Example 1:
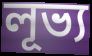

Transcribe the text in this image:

লূভ্য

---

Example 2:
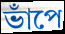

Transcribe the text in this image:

ভাঁপে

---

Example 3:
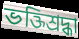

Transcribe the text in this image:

ভক্তিশ্রদ্ধা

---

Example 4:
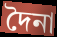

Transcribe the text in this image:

দৈনা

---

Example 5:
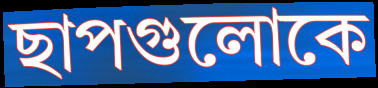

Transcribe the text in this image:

ছাপগুলোকে